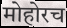
मोहोरच